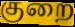
குறை